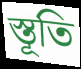
স্তূতি